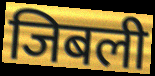
जिबली